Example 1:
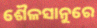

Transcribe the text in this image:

ଶୈଳସାନୁରେ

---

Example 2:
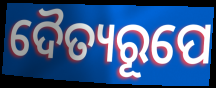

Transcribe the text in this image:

ଦୈତ୍ୟରୂପେ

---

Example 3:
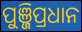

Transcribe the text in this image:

ପୁଞ୍ଜିପ୍ରଧାନ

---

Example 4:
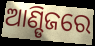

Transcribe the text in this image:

ଆଣ୍ଡିଜରେ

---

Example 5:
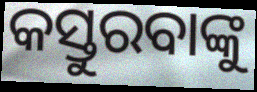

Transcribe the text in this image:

କସ୍ତୁରବାଙ୍କୁ